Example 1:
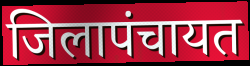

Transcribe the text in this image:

जिलापंचायत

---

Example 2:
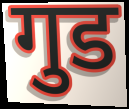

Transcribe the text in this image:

गुड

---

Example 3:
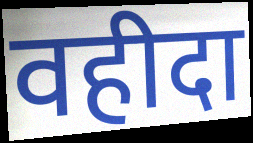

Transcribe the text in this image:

वहीदा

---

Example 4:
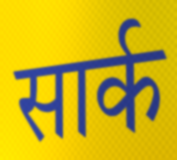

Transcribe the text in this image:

सार्क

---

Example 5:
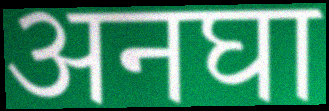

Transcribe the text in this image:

अनघा